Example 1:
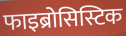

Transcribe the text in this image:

फाइब्रोसिस्टिक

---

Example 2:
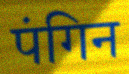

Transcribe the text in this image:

पंगिन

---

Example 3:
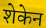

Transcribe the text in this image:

शेकेन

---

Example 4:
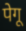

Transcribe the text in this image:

पेगू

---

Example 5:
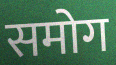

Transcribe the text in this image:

समोग